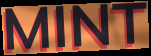
MINT